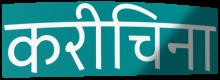
करीचिना